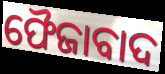
ଫୈଜାବାଦ